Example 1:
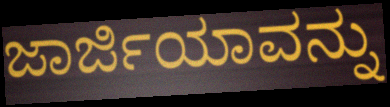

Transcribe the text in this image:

ಜಾರ್ಜಿಯಾವನ್ನು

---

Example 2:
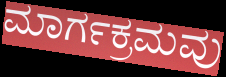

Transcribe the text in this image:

ಮಾರ್ಗಕ್ರಮವು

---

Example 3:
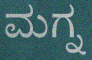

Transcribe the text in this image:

ಮಗ್ನ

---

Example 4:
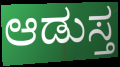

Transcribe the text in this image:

ಆಡುಸ್ತ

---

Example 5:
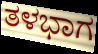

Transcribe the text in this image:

ತಳಭಾಗ